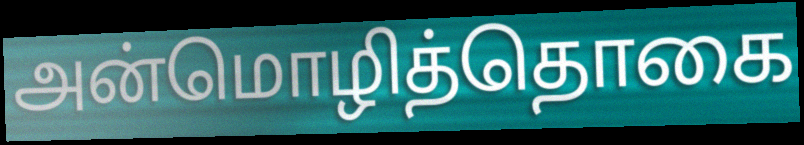
அன்மொழித்தொகை